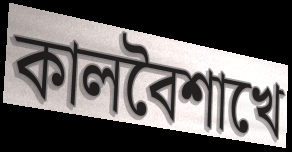
কালবৈশাখে